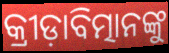
କ୍ରୀଡ଼ାବିତ୍ମାନଙ୍କୁ